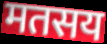
मतसय